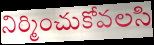
నిర్మించుకోవలసి